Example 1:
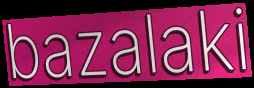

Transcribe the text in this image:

bazalaki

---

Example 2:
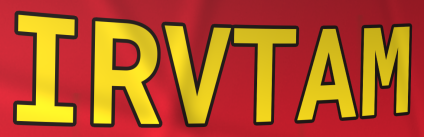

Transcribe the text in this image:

IRVTAM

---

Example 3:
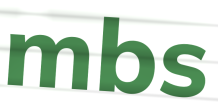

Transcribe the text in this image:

mbs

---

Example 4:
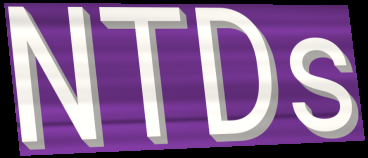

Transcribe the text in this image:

NTDs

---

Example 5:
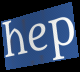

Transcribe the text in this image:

hep